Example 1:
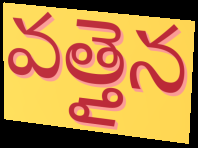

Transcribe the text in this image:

వత్తైన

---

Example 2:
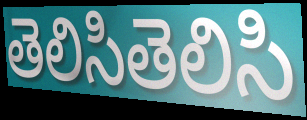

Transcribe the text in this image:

తెలిసితెలిసి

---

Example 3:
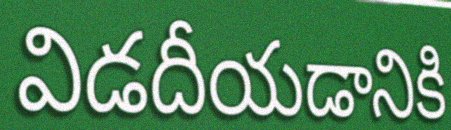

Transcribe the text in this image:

విడదీయడానికి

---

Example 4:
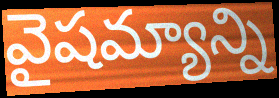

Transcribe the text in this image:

వైషమ్యాన్ని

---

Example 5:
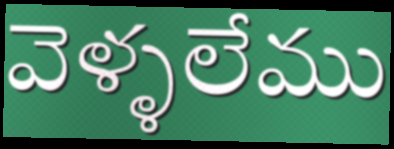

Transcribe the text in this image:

వెళ్ళలేము